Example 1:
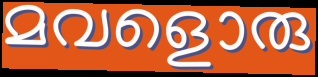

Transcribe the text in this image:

മവളൊരു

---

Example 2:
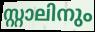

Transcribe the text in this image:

സ്റ്റാലിനും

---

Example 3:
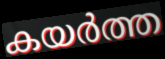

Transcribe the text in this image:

കയർത്ത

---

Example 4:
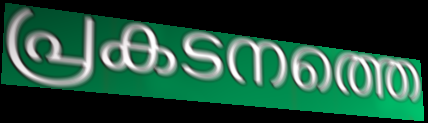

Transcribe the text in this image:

പ്രകടനത്തെ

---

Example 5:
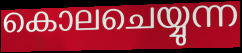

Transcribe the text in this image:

കൊലചെയ്യുന്ന